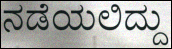
ನಡೆಯಲಿದ್ದು